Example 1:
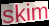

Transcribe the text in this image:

skim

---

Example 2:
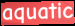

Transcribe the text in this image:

aquatic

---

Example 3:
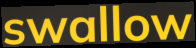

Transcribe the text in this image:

swallow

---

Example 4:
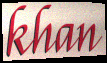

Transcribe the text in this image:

khan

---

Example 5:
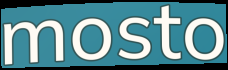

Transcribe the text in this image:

mosto